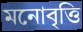
মনোবৃত্তি